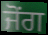
ਜੋਂਗ